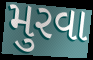
મુરવા